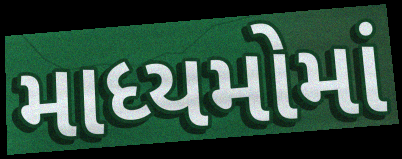
માધ્યમોમાં